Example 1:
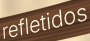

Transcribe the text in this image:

refletidos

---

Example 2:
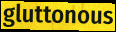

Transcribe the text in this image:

gluttonous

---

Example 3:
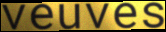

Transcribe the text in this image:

veuves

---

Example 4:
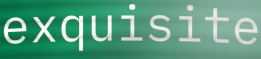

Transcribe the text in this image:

exquisite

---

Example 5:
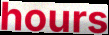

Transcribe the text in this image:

hours